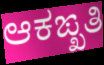
ಆಕಙ್ಖತಿ